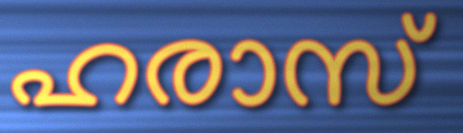
ഹരാസ്